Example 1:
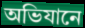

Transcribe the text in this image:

অভিযানে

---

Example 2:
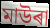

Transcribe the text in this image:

মাউৰা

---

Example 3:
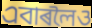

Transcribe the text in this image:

এবাৰলৈও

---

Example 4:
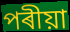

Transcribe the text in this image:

পৰীয়া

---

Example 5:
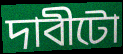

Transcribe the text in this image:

দাবীটো